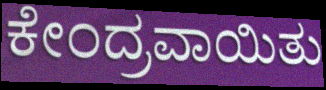
ಕೇಂದ್ರವಾಯಿತು